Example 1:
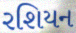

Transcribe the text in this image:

રશિયન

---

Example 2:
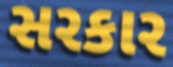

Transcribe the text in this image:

સરકાર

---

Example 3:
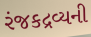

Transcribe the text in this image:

રંજકદ્રવ્યની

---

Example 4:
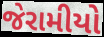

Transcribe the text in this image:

જેરામીયો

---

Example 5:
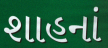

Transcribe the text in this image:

શાહનાં